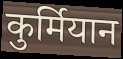
कुर्मियान